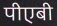
पीएबी